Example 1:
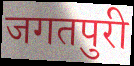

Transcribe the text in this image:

जगतपुरी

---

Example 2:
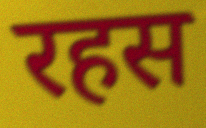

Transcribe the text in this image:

रहस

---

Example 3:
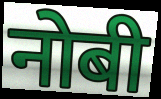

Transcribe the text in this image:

नोबी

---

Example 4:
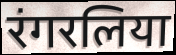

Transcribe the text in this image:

रंगरलिया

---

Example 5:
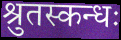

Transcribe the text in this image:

श्रुतस्कन्धः